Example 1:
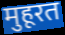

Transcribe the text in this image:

मुहूरत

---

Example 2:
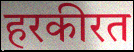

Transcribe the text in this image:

हरकीरत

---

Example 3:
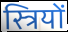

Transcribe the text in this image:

स्त्रियों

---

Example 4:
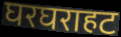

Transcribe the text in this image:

घरघराहट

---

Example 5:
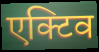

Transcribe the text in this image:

एक्टिव